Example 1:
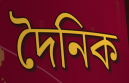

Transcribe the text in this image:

দৈনিক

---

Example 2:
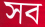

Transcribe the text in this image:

সব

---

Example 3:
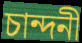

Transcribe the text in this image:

চান্দনী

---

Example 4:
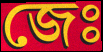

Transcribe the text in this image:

জেঃ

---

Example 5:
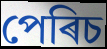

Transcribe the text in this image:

পেৰিচ